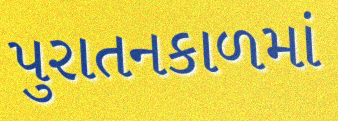
પુરાતનકાળમાં